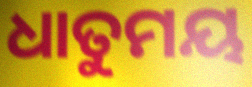
ଧାତୁମୟ